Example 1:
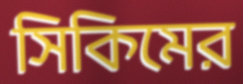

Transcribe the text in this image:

সিকিমের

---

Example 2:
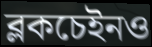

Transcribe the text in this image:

ব্লকচেইনও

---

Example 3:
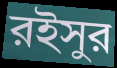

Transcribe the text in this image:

রইসুর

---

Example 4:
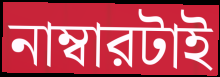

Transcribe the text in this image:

নাম্বারটাই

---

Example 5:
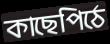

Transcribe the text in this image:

কাছেপিঠে